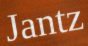
Jantz